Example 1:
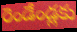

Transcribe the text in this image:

రెండేండ్లకు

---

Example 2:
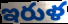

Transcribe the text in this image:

ఇరుళ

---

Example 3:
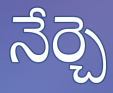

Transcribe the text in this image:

నేర్చె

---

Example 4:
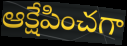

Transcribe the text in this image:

ఆక్షేపించగా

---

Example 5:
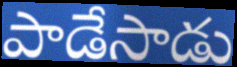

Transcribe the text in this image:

పాడేసాడు